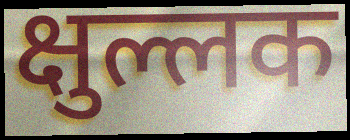
क्षुल्लक